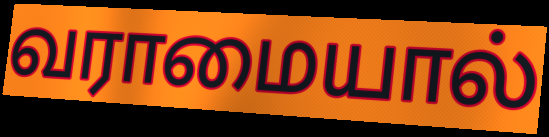
வராமையால்